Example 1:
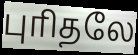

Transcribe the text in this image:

புரிதலே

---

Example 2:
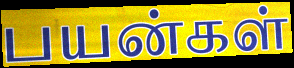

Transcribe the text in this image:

பயன்கள்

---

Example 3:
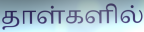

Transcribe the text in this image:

தாள்களில்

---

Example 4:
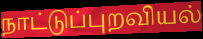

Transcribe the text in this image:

நாட்டுப்புறவியல்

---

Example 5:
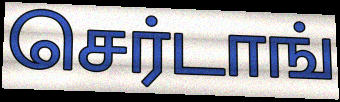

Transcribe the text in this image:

செர்டாங்